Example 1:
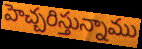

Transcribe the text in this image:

హెచ్చరిస్తున్నాము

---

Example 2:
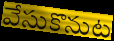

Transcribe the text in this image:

వేసుకొనుట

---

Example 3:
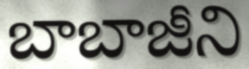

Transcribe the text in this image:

బాబాజీని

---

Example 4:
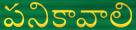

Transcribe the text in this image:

పనికావాలి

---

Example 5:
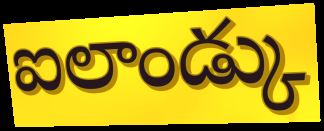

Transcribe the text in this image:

ఐలాండ్కు